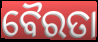
ବୈରତା